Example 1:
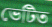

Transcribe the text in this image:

ভেটিত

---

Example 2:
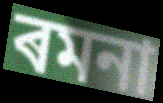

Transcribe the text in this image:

ৰমনা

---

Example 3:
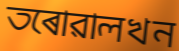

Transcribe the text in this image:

তৰোৱালখন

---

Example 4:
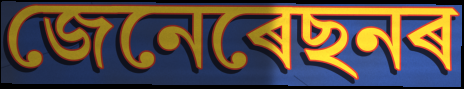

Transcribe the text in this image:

জেনেৰেছনৰ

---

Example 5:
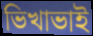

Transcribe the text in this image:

ভিখাভাই